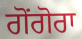
ਗੋਂਗੋਰਾ